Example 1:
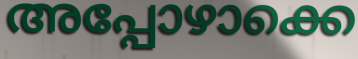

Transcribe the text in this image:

അപ്പോഴാക്കെ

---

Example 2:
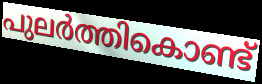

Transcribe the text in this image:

പുലർത്തികൊണ്ട്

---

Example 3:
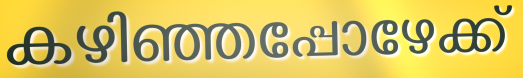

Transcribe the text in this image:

കഴിഞ്ഞപ്പോഴേക്ക്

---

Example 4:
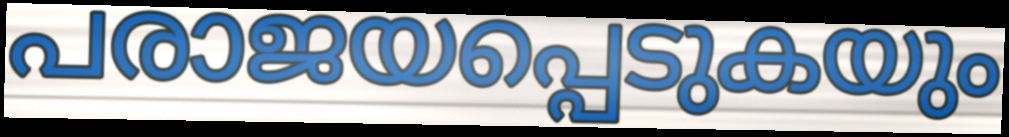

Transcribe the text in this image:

പരാജയപ്പെടുകയും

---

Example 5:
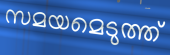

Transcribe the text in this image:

സമയമെടുത്ത്